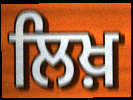
ਲਿਖ਼